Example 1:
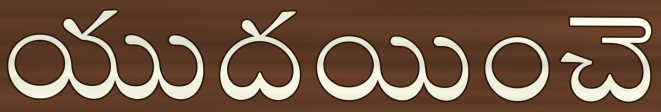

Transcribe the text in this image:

యుదయించె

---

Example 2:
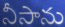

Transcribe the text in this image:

నీసాను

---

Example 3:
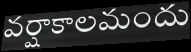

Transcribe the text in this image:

వర్షాకాలమందు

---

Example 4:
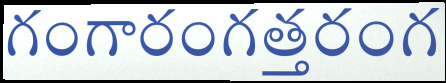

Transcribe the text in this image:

గంగారంగత్తరంగ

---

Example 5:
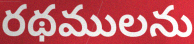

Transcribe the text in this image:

రథములను